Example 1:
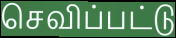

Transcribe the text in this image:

செவிப்பட்டு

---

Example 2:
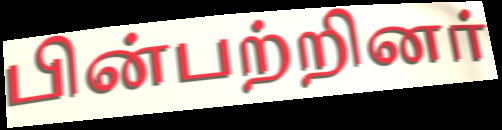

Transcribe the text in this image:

பின்பற்றினர்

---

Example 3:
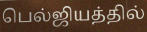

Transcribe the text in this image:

பெல்ஜியத்தில்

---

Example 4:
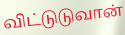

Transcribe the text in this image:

விட்டுடுவான்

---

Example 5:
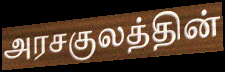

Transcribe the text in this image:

அரசகுலத்தின்